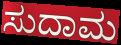
ಸುದಾಮ